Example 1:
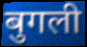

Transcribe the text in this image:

बुगली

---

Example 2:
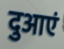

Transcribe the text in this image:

दुआएं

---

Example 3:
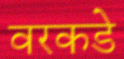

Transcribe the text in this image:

वरकडे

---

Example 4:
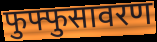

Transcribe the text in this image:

फुफ्फुसावरण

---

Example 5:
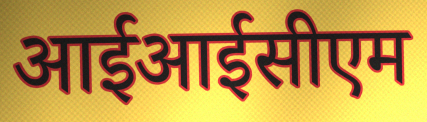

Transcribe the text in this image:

आईआईसीएम